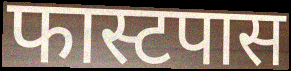
फास्टपास